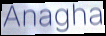
Anagha